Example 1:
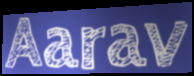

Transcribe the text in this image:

Aarav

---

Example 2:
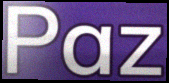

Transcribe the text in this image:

Paz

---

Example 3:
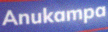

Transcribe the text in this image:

Anukampa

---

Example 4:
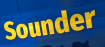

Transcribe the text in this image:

Sounder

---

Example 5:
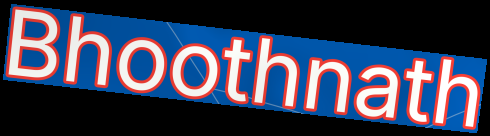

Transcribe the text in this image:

Bhoothnath